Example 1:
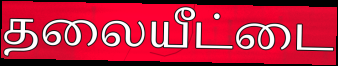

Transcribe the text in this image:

தலையீட்டை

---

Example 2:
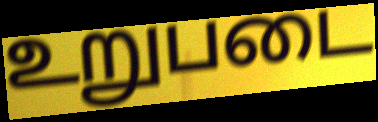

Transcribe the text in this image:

உறுபடை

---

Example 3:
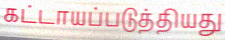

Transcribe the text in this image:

கட்டாயப்படுத்தியது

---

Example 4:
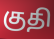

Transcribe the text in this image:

குதி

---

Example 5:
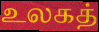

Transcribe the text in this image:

உலகத்